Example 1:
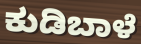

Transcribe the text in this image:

ಕುಡಿಬಾಳೆ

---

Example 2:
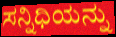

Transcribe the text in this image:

ಸನ್ನಿಧಿಯನ್ನು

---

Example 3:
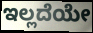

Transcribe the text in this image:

ಇಲ್ಲದೆಯೇ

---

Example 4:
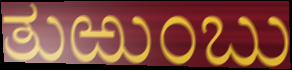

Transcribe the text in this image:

ತುಱುಂಬು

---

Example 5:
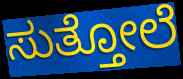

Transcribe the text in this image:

ಸುತ್ತೋಲೆ